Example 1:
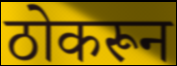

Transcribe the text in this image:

ठोकरून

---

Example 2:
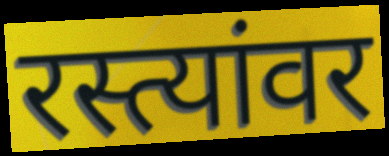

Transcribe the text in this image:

रस्त्यांवर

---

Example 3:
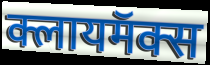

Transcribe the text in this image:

क्लायमॅक्स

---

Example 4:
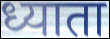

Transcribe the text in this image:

ध्याता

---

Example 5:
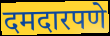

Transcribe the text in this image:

दमदारपणे